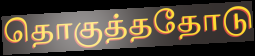
தொகுத்ததோடு